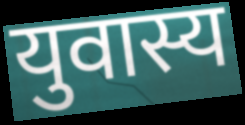
युवास्य